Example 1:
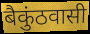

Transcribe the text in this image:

बैकुंठवासी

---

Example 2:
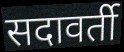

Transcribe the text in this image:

सदावर्ती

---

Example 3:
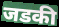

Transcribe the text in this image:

जडकी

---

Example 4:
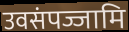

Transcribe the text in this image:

उवसंपज्जामि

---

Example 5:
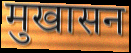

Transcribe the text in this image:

मुखासन